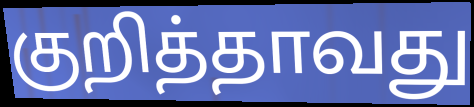
குறித்தாவது